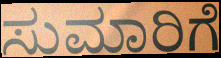
ಸುಮಾರಿಗೆ